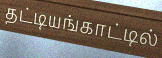
தட்டியங்காட்டில்